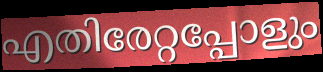
എതിരേറ്റപ്പോളും